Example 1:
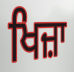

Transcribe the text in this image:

ਖਿਜ਼ਾ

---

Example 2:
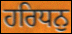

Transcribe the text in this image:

ਹਰਿਧਨੁ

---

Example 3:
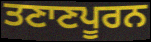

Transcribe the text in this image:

ਤਣਾਣਪੂਰਨ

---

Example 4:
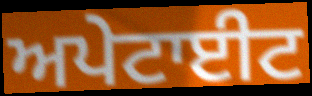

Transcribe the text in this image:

ਅਪੇਟਾਈਟ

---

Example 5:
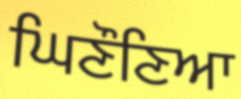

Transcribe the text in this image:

ਘਿਣੌਣਿਆ